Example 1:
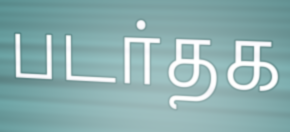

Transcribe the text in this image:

படர்தக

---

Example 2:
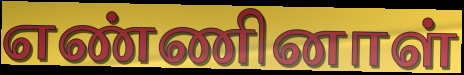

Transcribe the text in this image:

எண்ணினாள்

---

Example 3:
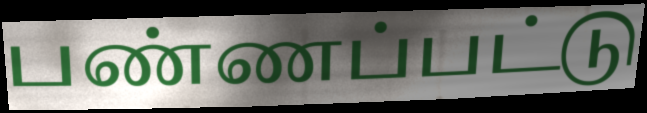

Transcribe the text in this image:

பண்ணப்பட்டு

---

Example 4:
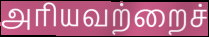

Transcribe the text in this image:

அரியவற்றைச்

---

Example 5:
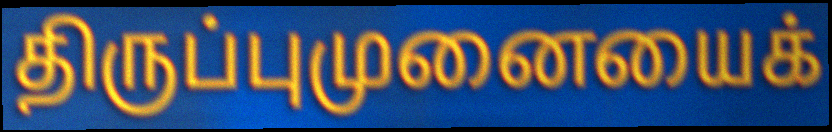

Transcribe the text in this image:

திருப்புமுனையைக்